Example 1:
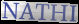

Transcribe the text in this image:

NATHI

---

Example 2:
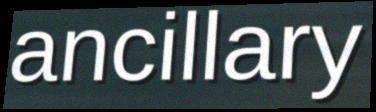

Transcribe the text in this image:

ancillary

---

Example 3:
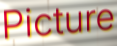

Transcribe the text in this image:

Picture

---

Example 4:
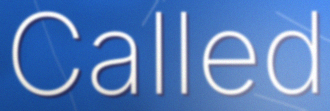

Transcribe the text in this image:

Called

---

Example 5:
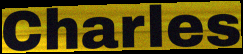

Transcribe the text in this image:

Charles